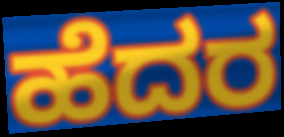
ಹೆದರ